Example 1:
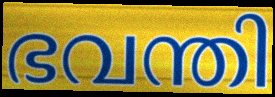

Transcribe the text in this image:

ഭവന്തി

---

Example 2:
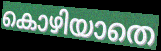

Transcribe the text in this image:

കൊഴിയാതെ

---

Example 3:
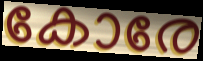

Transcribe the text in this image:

കോരേ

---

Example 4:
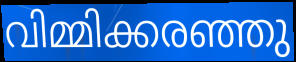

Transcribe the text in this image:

വിമ്മിക്കരഞ്ഞു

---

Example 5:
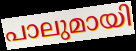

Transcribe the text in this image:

പാലുമായി